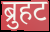
ब्रुहट